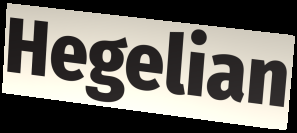
Hegelian